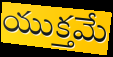
యుక్తమే